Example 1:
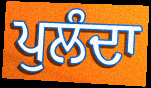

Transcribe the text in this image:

ਪੁਲੰਦਾ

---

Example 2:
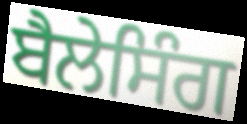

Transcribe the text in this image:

ਬੈਲੇਸਿੰਗ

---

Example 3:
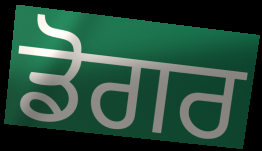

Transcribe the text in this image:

ਡੋਗਰ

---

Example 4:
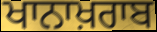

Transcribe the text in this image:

ਖਾਨਾਖ਼ਰਾਬ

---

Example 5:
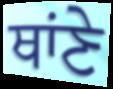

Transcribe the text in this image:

ਥਾਂਣੇ